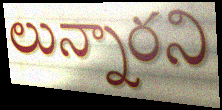
లున్నారని